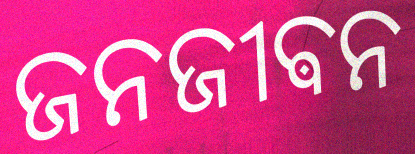
ଜନଜୀଵନ